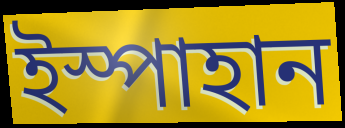
ইস্পাহান